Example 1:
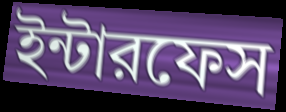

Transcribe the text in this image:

ইন্টারফেস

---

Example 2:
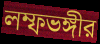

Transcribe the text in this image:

লম্ফভঙ্গীর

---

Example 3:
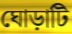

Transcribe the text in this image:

ঘোড়াটি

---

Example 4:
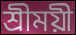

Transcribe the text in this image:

শ্রীময়ী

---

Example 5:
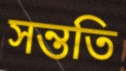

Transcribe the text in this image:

সন্ততি